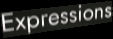
Expressions